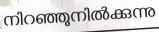
നിറഞ്ഞുനിൽക്കുന്നു